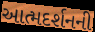
આત્મદર્શનની